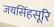
जयसिंहसूरि